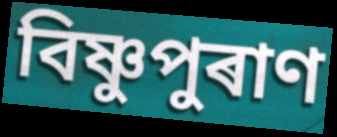
বিষ্ণুপুৰাণ